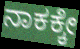
ನಾಕಕ್ಕೇ